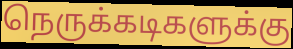
நெருக்கடிகளுக்கு